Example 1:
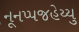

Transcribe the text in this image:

નૂનપ્પજહેય્યુ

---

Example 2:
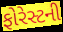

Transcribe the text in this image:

ફોરેસ્ટની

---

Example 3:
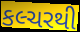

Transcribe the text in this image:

કલ્ચરથી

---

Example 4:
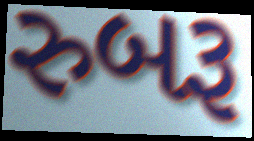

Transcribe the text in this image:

રુબરૂ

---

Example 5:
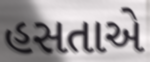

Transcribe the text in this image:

હસતાએ